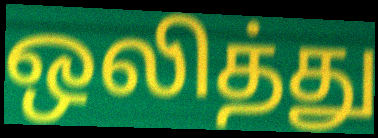
ஒலித்து